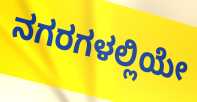
ನಗರಗಳಲ್ಲಿಯೇ